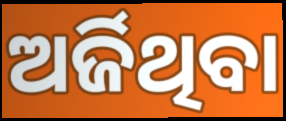
ଅର୍ଜିଥିବା